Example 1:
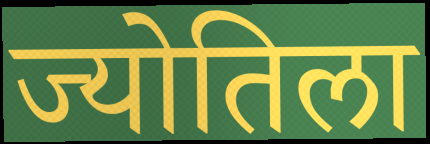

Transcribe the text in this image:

ज्योतिला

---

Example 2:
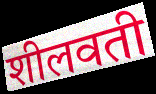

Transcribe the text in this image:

शीलवती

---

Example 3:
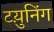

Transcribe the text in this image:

टय़ुनिंग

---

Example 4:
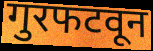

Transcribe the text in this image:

गुरफटवून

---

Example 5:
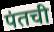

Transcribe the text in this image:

पंतची